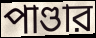
পাণ্ডার